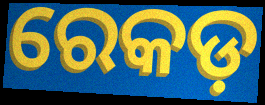
ରେକଡ଼